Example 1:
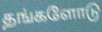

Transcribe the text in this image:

தங்களோடு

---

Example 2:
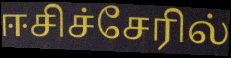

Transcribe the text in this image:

ஈசிச்சேரில்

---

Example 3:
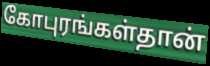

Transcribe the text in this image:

கோபுரங்கள்தான்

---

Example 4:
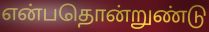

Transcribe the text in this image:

என்பதொன்றுண்டு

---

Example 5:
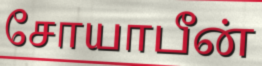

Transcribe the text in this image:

சோயாபீன்